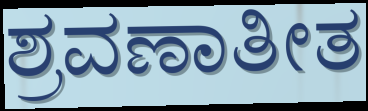
ಶ್ರವಣಾತೀತ